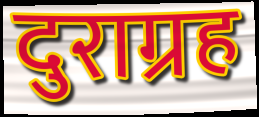
दुराग्रह